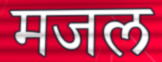
मजल